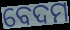
ବେଦମ